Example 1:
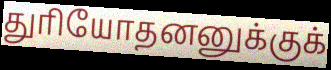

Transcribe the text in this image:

துரியோதனனுக்குக்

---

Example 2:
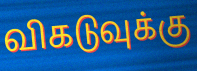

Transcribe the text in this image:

விகடுவுக்கு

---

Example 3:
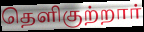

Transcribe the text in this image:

தெளிகுற்றார்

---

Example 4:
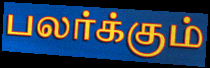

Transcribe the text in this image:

பலர்க்கும்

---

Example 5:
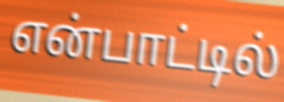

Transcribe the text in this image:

என்பாட்டில்